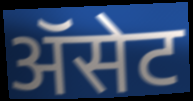
ॲसेट